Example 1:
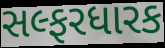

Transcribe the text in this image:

સલ્ફરધારક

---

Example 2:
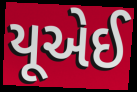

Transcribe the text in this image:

યૂએઈ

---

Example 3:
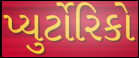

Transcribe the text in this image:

પ્યુર્ટોરિકો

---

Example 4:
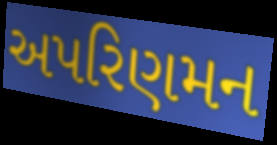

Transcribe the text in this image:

અપરિણમન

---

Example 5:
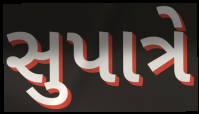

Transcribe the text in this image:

સુપાત્રે